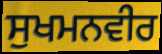
ਸੁਖਮਨਵੀਰ